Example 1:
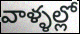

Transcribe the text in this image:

వాళ్ళల్లో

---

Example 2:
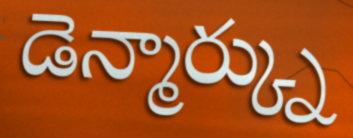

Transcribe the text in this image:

డెన్మార్క్ను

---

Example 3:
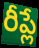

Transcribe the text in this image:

రీప్లే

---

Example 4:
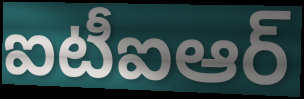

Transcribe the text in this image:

ఐటీఐఆర్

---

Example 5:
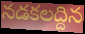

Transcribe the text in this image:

నడకలద్దిన